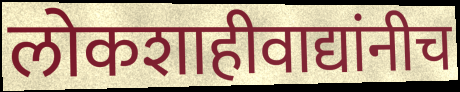
लोकशाहीवाद्यांनीच